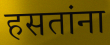
हसतांना